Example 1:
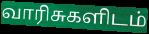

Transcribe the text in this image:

வாரிசுகளிடம்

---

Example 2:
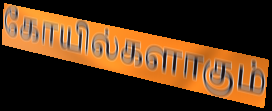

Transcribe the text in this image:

கோயில்களாகும்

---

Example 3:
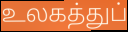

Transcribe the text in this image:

உலகத்துப்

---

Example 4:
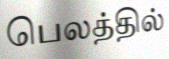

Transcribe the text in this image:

பெலத்தில்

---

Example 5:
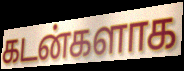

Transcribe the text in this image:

கடன்களாக